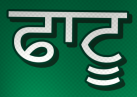
ਫਾਟੂ